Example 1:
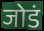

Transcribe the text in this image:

जोडं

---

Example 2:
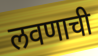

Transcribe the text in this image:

लवणाची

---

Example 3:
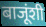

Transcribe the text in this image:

बाजूंशी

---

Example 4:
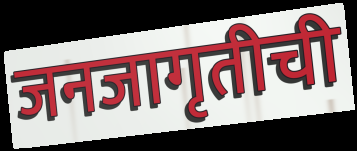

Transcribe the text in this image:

जनजागृतीची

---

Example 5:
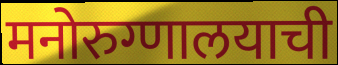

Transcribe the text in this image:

मनोरुग्णालयाची